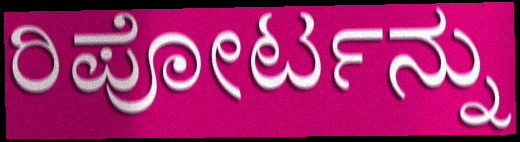
ರಿಪೋರ್ಟನ್ನು